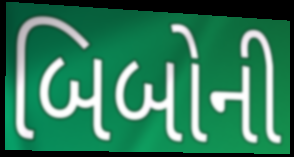
બિબોની